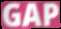
GAP